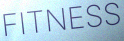
FITNESS